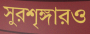
সুরশৃঙ্গারও